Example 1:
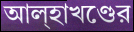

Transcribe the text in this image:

আল্হাখণ্ডের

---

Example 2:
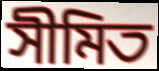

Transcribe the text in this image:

সীমিত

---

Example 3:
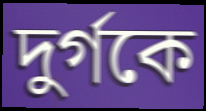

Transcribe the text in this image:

দুর্গকে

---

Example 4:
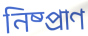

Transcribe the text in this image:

নিষ্প্রাণ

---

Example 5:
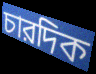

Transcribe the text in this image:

চারদিক